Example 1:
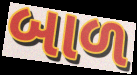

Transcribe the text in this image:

બાળ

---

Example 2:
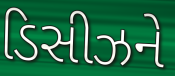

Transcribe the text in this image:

ડિસીઝને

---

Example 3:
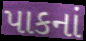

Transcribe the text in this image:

પાકનાં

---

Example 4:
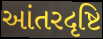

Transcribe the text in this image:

આંતરદૃષ્ટિ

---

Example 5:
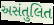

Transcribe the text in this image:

અસંતુલિત